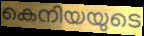
കെനിയയുടെ